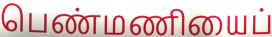
பெண்மணியைப்